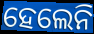
ହେଲେନି